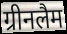
ग्रीनलैम